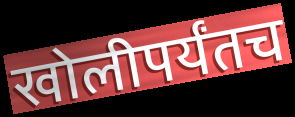
खोलीपर्यंतच